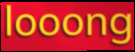
looong